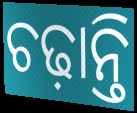
ଚଢ଼ାନ୍ତି